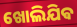
ଖୋଲିଯିଵ